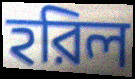
হরিল